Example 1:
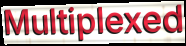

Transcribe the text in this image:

Multiplexed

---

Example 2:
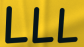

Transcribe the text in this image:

LLL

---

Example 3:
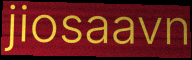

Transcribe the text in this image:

jiosaavn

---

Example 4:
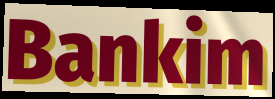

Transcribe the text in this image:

Bankim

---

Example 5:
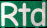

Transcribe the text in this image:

Rtd